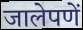
जालेपणें